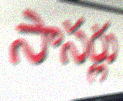
సాసర్లు